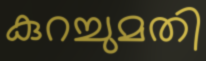
കുറച്ചുമതി